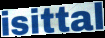
isittal